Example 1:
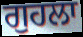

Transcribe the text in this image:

ਗੁਹਲਾ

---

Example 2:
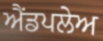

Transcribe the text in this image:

ਐਂਡਪਲੇਅ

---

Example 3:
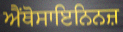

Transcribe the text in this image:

ਐਂਥੋਸਾਇਨਿਨਜ਼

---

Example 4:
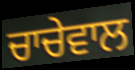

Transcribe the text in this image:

ਚਾਚੇਵਾਲ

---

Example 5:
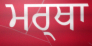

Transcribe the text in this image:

ਮਰ੍ਥਾ